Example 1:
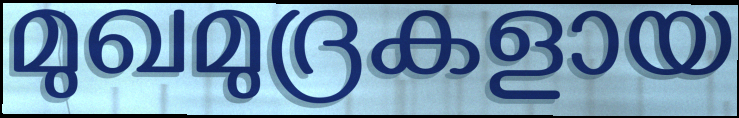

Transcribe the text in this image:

മുഖമുദ്രകളായ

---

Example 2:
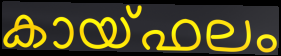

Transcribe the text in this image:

കായ്ഫലം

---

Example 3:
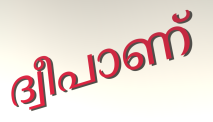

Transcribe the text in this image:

ദ്വീപാണ്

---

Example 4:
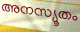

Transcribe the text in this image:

അനസ്യൂതം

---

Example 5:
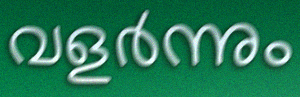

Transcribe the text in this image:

വളർന്നും